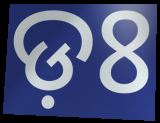
ଡ଼ଃ